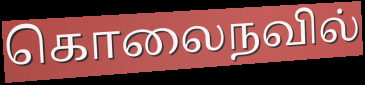
கொலைநவில்